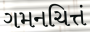
ગમનચિત્તં